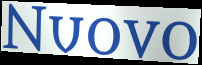
Nuovo